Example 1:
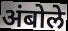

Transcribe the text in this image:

अंबोले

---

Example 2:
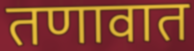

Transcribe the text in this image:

तणावात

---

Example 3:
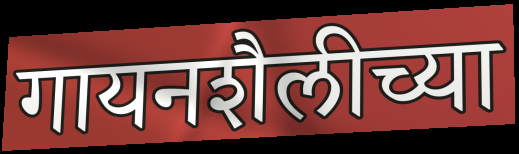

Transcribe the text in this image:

गायनशैलीच्या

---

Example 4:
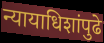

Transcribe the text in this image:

न्यायाधिशांपुढे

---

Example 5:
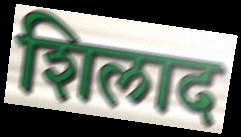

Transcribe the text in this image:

शिलाद